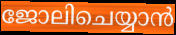
ജോലിചെയ്യാൻ